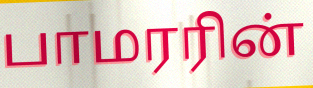
பாமரரின்